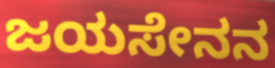
ಜಯಸೇನನ